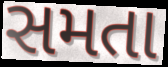
સમતા